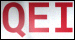
QEI